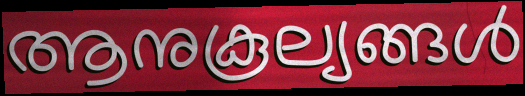
ആനുകൂല്യങ്ങൾ